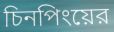
চিনপিংয়ের